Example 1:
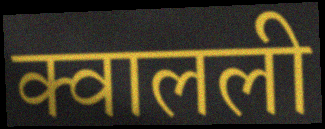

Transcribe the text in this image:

क्वालली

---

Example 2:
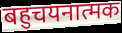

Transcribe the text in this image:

बहुचयनात्मक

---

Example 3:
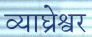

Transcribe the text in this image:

व्याघ्रेश्वर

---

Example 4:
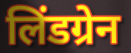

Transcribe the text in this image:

लिंडग्रेन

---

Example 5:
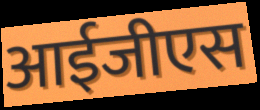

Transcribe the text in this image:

आईजीएस